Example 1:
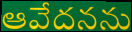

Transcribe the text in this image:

ఆవేదనను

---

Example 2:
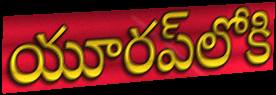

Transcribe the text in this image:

యూరప్‌లోకి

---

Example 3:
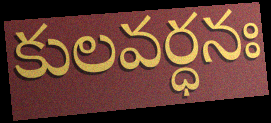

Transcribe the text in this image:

కులవర్ధనః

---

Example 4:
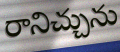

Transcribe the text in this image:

రానిచ్చును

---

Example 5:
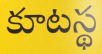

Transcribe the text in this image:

కూటస్థ